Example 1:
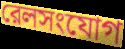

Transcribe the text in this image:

রেলসংযোগ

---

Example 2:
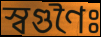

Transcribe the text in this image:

স্বগুণৈঃ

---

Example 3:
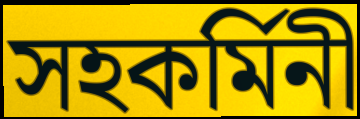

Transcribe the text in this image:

সহকর্মিনী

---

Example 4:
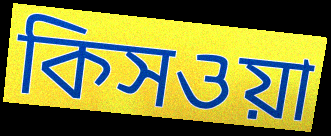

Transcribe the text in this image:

কিসওয়া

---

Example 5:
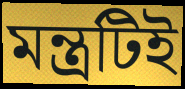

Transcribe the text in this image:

মন্ত্রটিই